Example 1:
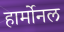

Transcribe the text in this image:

हार्मोनल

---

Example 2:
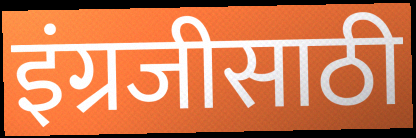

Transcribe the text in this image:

इंग्रजीसाठी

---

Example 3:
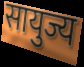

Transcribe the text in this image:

सायुज्य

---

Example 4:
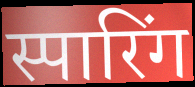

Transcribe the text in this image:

स्पारिंग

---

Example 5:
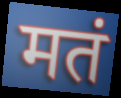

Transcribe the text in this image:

मतं